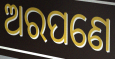
ଅରପଣେ